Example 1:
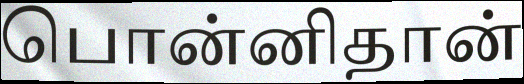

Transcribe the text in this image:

பொன்னிதான்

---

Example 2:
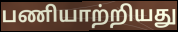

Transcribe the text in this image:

பணியாற்றியது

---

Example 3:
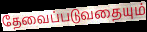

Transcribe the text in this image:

தேவைப்படுவதையும்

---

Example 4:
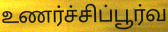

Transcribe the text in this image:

உணர்ச்சிப்பூர்வ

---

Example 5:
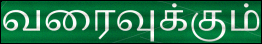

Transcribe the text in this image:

வரைவுக்கும்